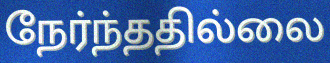
நேர்ந்ததில்லை